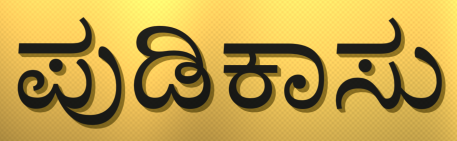
ಪುಡಿಕಾಸು